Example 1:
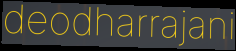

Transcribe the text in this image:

deodharrajani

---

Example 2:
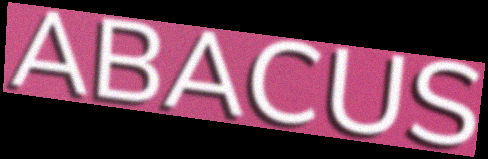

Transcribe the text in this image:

ABACUS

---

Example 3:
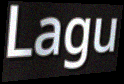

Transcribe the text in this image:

Lagu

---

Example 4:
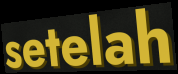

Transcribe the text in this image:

setelah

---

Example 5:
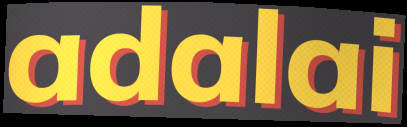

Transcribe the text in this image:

adalai